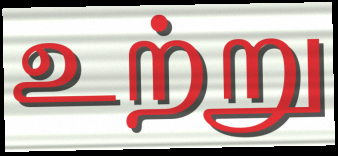
உற்று